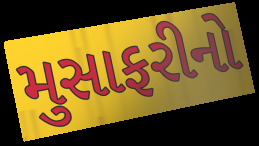
મુસાફરીનો